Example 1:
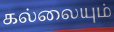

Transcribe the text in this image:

கல்லையும்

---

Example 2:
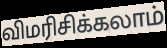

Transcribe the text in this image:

விமரிசிக்கலாம்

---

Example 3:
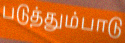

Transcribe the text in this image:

படுத்தும்பாடு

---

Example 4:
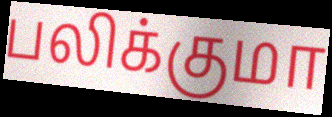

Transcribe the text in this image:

பலிக்குமா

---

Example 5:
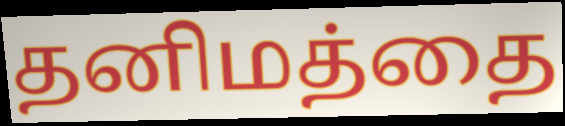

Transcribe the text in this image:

தனிமத்தை